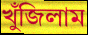
খুঁজিলাম